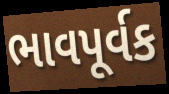
ભાવપૂર્વક